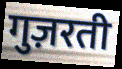
गुज़रती